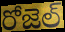
రోజెల్